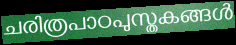
ചരിത്രപാഠപുസ്തകങ്ങൾ